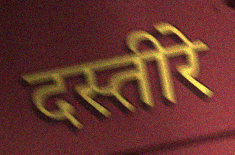
दस्तीरे